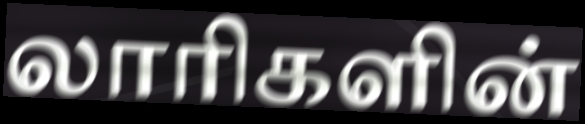
லாரிகளின்